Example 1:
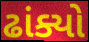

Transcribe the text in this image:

ઢાંક્યો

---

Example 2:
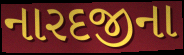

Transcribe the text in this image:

નારદજીના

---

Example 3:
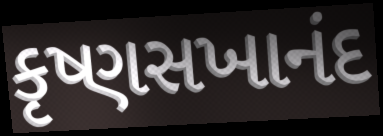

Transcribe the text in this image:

કૃષ્ણસખાનંદ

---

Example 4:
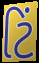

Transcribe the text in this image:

ટિં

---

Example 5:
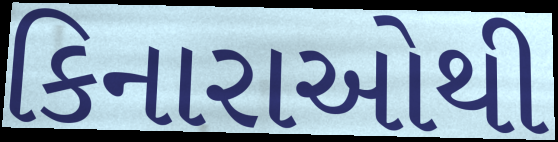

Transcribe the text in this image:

કિનારાઓથી